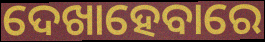
ଦେଖାହେବାରେ